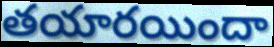
తయారయిందా